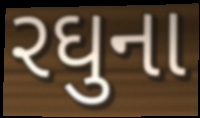
રઘુના